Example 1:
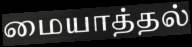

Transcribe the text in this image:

மையாத்தல்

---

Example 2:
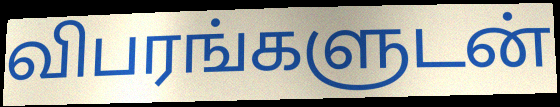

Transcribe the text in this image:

விபரங்களுடன்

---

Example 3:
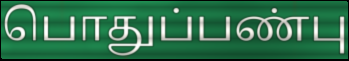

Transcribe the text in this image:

பொதுப்பண்பு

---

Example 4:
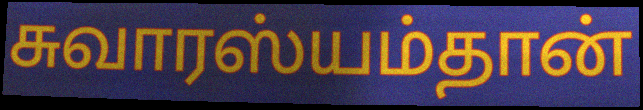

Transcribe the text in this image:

சுவாரஸ்யம்தான்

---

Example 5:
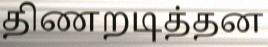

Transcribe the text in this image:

திணறடித்தன